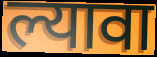
ल्यावा